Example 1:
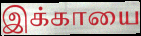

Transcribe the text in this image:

இக்காயை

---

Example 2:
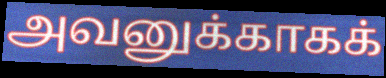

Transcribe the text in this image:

அவனுக்காகக்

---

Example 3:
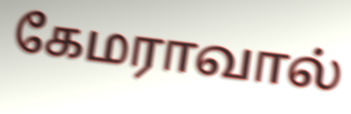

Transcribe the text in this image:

கேமராவால்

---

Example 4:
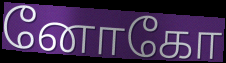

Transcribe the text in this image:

னோகோ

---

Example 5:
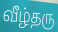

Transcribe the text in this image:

வீழ்தரு